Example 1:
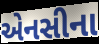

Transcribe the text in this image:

એનસીના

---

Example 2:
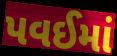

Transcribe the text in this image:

પવઈમાં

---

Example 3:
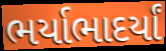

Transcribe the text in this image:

ભર્યાભાદર્યાં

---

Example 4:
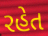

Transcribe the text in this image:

રહેત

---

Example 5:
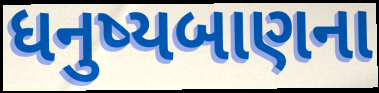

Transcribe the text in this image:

ધનુષ્યબાણના